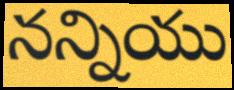
నన్నియు